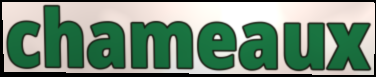
chameaux